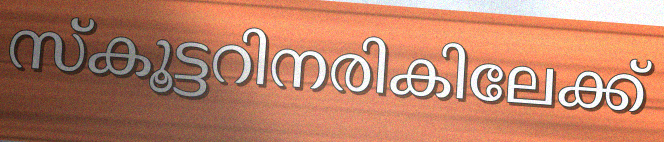
സ്കൂട്ടറിനരികിലേക്ക്